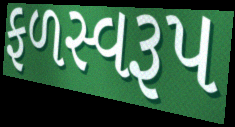
ફળસ્વરૂપ